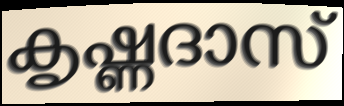
കൃഷ്ണദാസ്